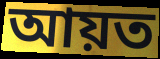
আয়ত